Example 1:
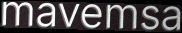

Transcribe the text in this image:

mavemsa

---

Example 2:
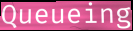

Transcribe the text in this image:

Queueing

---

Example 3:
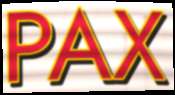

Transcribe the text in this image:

PAX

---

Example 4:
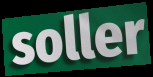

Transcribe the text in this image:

soller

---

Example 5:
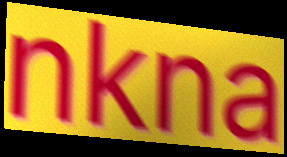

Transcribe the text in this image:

nkna